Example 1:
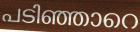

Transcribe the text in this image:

പടിഞ്ഞാറെ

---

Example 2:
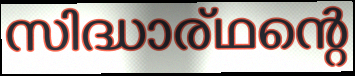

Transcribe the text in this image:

സിദ്ധാര്ഥന്റെ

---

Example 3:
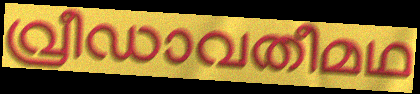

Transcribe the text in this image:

വ്രീഡാവതീമഥ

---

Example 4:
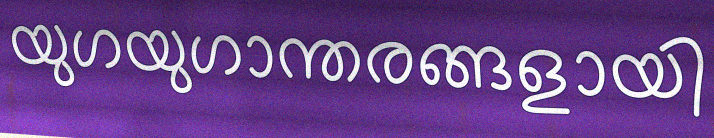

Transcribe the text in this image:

യുഗയുഗാന്തരങ്ങളായി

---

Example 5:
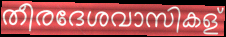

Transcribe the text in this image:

തീരദേശവാസികള്